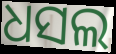
ଧସଲ